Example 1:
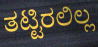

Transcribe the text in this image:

ತಟ್ಟಿರಲಿಲ್ಲ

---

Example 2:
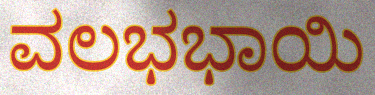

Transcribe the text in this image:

ವಲಭಭಾಯಿ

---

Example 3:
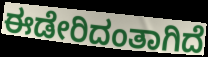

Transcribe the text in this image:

ಈಡೇರಿದಂತಾಗಿದೆ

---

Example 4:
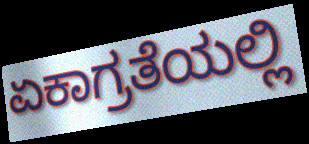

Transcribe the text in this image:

ಏಕಾಗ್ರತೆಯಲ್ಲಿ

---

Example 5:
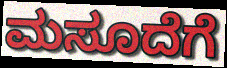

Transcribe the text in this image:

ಮಸೂದೆಗೆ